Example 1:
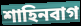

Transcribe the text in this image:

শাহিনবাগ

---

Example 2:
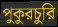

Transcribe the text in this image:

পুকুরচুরি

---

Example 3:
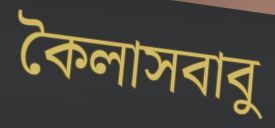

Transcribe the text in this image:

কৈলাসবাবু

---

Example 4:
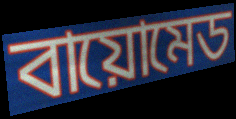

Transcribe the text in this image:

বায়োমেড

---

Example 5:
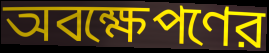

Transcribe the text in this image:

অবক্ষেপণের